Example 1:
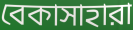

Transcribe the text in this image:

বেকাসাহারা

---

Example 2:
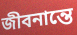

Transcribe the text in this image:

জীবনান্তে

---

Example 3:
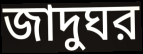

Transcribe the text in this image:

জাদুঘর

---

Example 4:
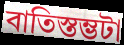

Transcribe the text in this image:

বাতিস্তম্ভটা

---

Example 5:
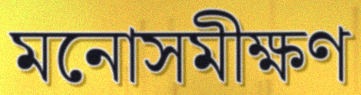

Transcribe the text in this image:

মনোসমীক্ষণ